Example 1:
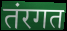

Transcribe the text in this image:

तंरगत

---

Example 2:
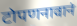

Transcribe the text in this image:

टोपणनावानं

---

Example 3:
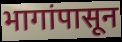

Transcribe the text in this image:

भागांपासून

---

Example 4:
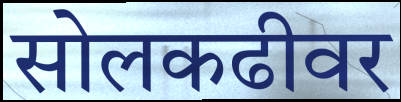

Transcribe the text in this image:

सोलकढीवर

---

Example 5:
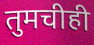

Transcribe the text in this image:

तुमचीही